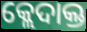
କ୍ଲେଦାକ୍ତ